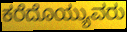
ಕರೆದೊಯ್ಯುವರು